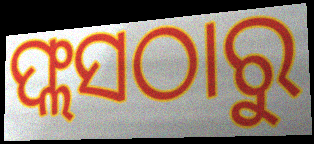
ଫ୍ଲସଠାରୁ